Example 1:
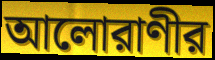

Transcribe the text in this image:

আলোরাণীর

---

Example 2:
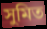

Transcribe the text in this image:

সুমিত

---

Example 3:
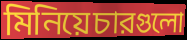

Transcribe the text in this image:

মিনিয়েচারগুলো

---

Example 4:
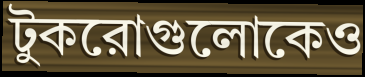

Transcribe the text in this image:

টুকরোগুলোকেও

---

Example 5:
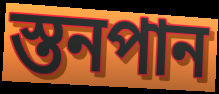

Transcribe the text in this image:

স্তনপান